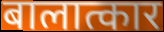
बालात्कार